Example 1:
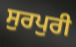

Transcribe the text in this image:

ਸੁਰਪੁਰੀ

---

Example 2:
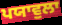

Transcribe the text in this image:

ਪਯਾਵੁਲਾ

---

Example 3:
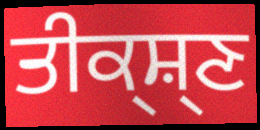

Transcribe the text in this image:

ਤੀਕ੍ਸ਼੍ਣ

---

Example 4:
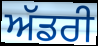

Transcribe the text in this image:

ਅੱਡਰੀ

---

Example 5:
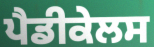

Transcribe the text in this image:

ਪੈਡੀਕੇਲਸ